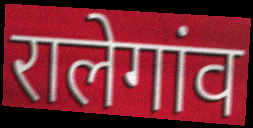
रालेगांव